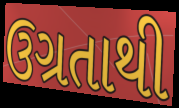
ઉગ્રતાથી